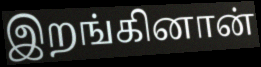
இறங்கினான்